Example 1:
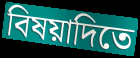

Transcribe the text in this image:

বিষয়াদিতে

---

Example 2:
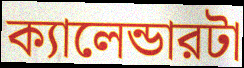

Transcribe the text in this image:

ক্যালেন্ডারটা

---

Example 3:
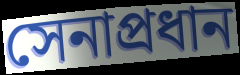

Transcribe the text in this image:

সেনাপ্রধান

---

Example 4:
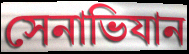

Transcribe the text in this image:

সেনাভিযান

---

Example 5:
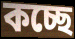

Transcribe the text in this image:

কচ্ছে